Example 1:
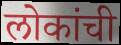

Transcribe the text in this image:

लोकांची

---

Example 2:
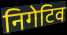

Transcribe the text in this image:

निगेटिव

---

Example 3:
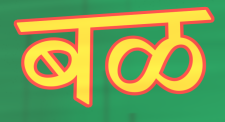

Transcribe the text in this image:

बळ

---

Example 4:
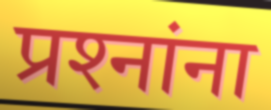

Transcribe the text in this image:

प्रश्‍नांना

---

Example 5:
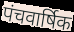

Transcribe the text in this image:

पंचवार्षिक